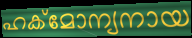
ഹക്മോന്യനായ